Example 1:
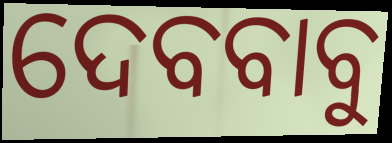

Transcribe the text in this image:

ଦେବବାବୁ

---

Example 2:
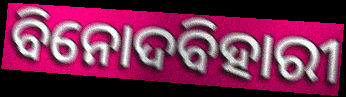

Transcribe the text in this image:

ବିନୋଦବିହାରୀ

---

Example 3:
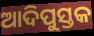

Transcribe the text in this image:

ଆଦିପୁସ୍ତକ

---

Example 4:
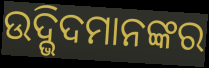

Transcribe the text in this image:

ଉଦ୍ଭିଦମାନଙ୍କର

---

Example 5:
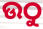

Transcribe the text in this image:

ଉଠୁ